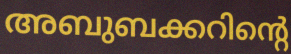
അബുബക്കറിന്റെ